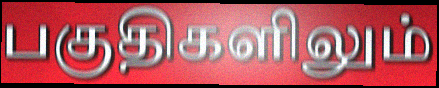
பகுதிகளிலும்